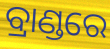
ବ୍ରାଣ୍ଡରେ